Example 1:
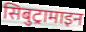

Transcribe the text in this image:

सिबुट्रामाइन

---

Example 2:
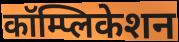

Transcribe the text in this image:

कॉम्प्लिकेशन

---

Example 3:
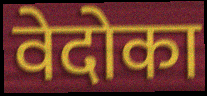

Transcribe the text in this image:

वेदोका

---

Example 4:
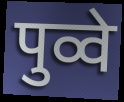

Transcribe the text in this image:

पुव्वे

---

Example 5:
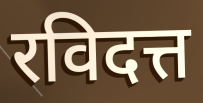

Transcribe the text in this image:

रविदत्त